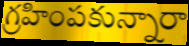
గ్రహింపకున్నారా